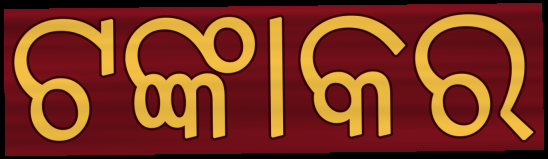
ଟଙ୍କାକର